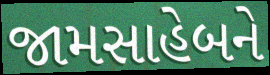
જામસાહેબને